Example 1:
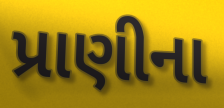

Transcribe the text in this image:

પ્રાણીના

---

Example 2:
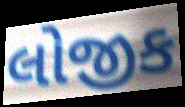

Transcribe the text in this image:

લોજીક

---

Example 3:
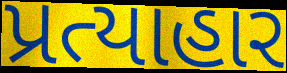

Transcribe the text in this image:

પ્રત્યાહાર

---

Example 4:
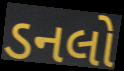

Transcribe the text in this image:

ડનલો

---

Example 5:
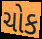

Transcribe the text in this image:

ચોક